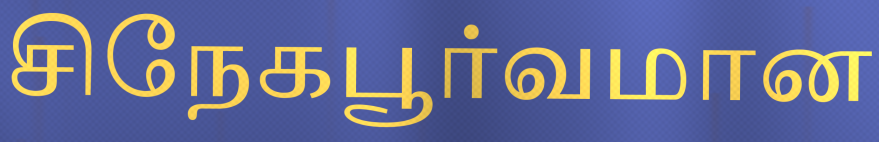
சிநேகபூர்வமான